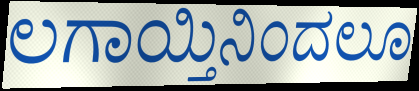
ಲಗಾಯ್ತಿನಿಂದಲೂ